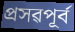
প্ৰসৱপূৰ্ব